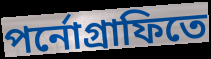
পর্নোগ্রাফিতে